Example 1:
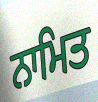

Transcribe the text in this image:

ਨਾਮਿਤ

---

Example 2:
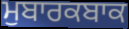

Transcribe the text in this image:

ਮੁਬਾਰਕਬਾਕ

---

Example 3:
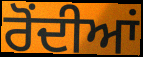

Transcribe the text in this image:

ਰੋਂਦੀਆਂ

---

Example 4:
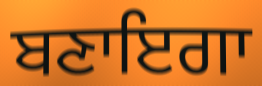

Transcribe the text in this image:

ਬਣਾਇਗਾ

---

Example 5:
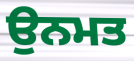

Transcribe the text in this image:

ਉਨਮਤ